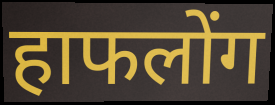
हाफलोंग